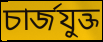
চার্জযুক্ত